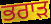
ਭਰਾੜ